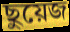
ছুয়েজ